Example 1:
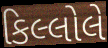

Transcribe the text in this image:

કિલ્લોલે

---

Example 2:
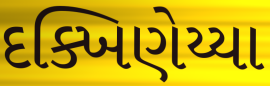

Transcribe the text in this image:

દક્ખિણેય્યા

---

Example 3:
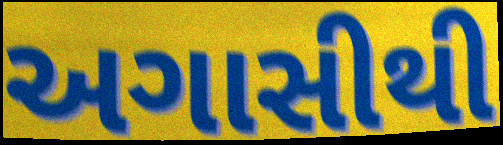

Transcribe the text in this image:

અગાસીથી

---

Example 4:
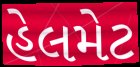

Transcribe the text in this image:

હેલમેટ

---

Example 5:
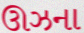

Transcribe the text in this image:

ઊઝના